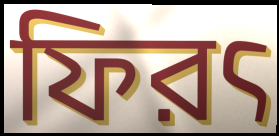
ফিরৎ